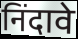
निंदावे